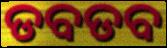
ଡବଡବ